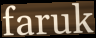
faruk